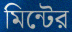
মিন্টের